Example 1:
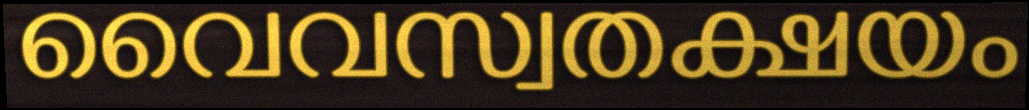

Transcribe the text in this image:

വൈവസ്വതക്ഷയം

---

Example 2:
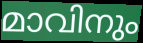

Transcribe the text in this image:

മാവിനും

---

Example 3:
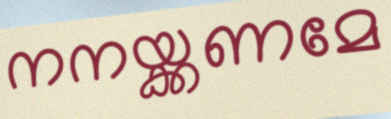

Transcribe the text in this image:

നനയ്ക്കണമേ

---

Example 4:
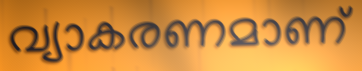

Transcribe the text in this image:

വ്യാകരണമാണ്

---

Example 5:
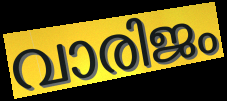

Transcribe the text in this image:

വാരിജം